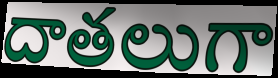
దాతలుగా